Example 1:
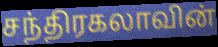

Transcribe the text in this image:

சந்திரகலாவின்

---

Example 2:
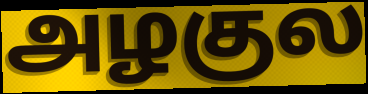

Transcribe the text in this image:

அழகுல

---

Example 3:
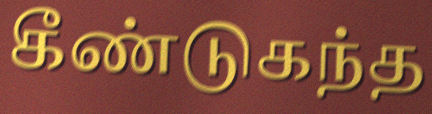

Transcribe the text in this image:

கீண்டுகந்த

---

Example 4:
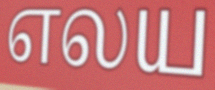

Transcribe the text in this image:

எலய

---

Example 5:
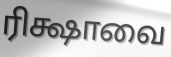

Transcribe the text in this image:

ரிக்ஷாவை